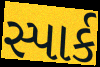
સ્પાર્ક